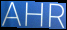
AHR